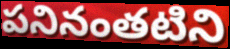
పనినంతటిని